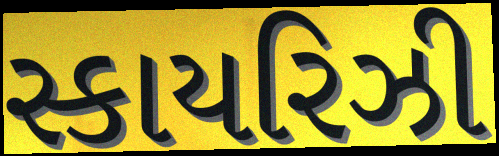
સ્કાયરિઝી